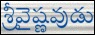
శ్రీవైష్ణవుడు